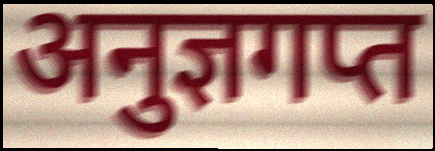
अनुज्ञगप्त